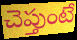
చెప్తుంటే